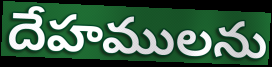
దేహములను